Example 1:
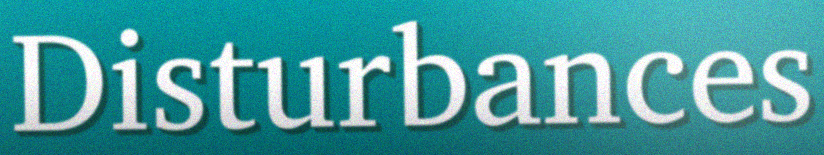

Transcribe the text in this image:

Disturbances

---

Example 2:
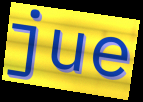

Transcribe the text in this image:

jue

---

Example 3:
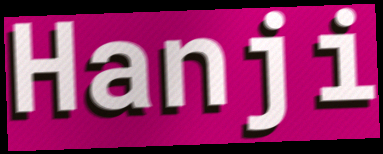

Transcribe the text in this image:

Hanji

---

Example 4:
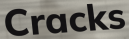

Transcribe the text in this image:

Cracks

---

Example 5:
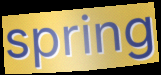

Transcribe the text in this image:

spring